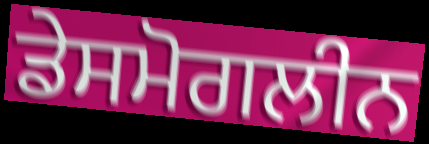
ਡੇਸਮੋਗਲੀਨ